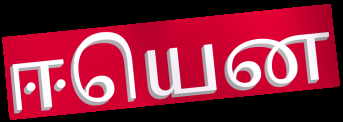
ஈயென